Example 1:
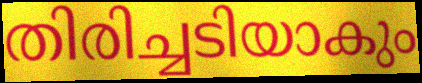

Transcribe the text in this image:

തിരിച്ചടിയാകും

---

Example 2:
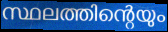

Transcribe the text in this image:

സ്ഥലത്തിന്റെയും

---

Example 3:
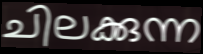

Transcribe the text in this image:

ചിലക്കുന്ന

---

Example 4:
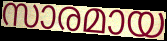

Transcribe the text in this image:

സാരമായ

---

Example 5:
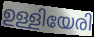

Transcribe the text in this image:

ഉള്ളിയേരി